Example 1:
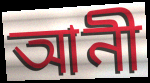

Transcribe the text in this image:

আনী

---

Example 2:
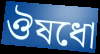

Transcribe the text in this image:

ঔষধো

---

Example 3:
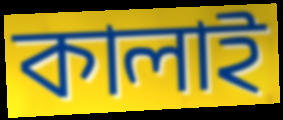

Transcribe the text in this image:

কালাই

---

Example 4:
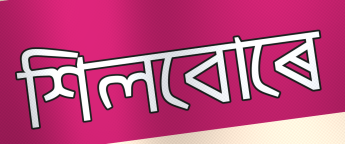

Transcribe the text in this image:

শিলবোৰে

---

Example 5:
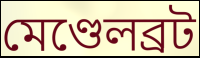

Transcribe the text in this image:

মেণ্ডেলব্ৰট